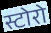
स्टोरो